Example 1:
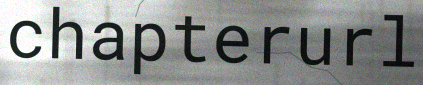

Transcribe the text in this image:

chapterurl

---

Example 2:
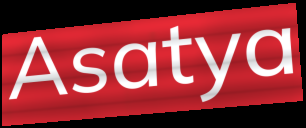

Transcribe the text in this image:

Asatya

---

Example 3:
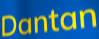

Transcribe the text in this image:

Dantan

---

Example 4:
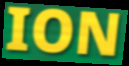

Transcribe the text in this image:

ION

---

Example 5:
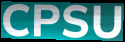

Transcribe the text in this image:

CPSU